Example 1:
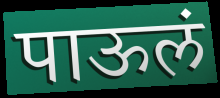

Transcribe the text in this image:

पाऊलं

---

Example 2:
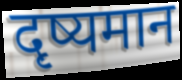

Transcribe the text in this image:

दृष्यमान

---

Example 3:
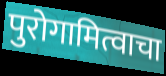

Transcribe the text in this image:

पुरोगामित्वाचा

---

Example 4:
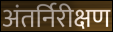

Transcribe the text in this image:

अंतर्निरीक्षण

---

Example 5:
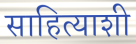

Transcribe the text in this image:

साहित्याशी